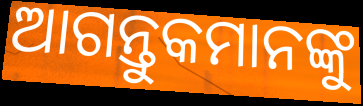
ଆଗନ୍ତୁକମାନଙ୍କୁ